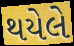
થયેલે